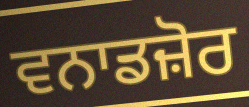
ਵਨਾਡਜ਼ੋਰ